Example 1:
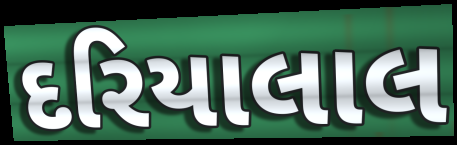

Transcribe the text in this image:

દરિયાલાલ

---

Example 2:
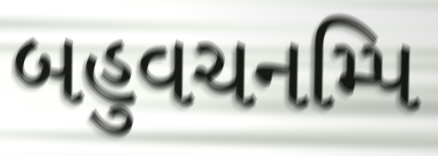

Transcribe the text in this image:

બહુવચનમ્પિ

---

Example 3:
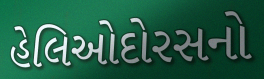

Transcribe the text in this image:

હેલિઓદોરસનો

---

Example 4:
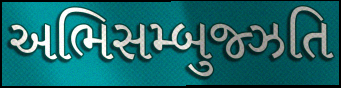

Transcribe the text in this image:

અભિસમ્બુજ્ઝતિ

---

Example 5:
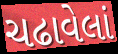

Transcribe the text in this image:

ચઢાવેલાં